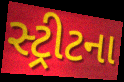
સ્ટ્રીટના